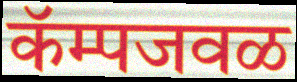
कॅम्पजवळ